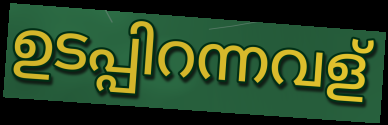
ഉടപ്പിറന്നവള്